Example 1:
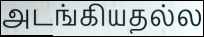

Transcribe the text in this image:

அடங்கியதல்ல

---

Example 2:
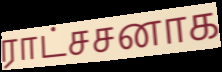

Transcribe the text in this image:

ராட்சசனாக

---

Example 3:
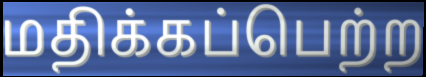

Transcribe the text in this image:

மதிக்கப்பெற்ற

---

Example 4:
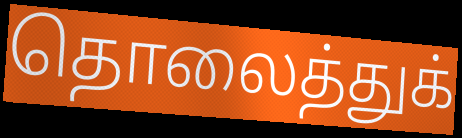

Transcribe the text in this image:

தொலைத்துக்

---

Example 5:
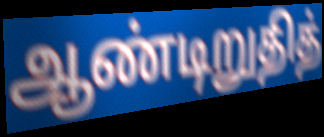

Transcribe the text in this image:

ஆண்டிறுதித்